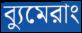
ব্যুমেরাং